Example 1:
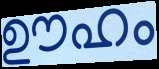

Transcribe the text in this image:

ഊഹം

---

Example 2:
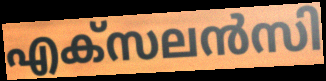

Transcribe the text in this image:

എക്സലൻസി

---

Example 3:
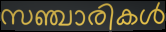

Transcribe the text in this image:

സഞ്ചാരികൾ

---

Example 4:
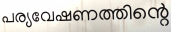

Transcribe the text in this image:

പര്യവേഷണത്തിന്റെ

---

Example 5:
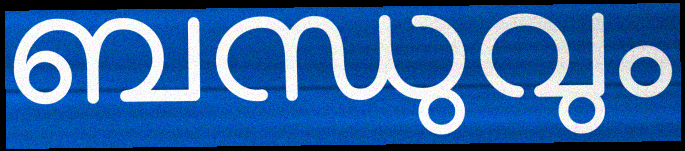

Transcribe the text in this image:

ബന്ധുവും